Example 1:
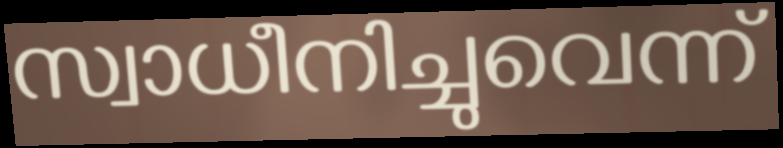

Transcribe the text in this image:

സ്വാധീനിച്ചുവെന്ന്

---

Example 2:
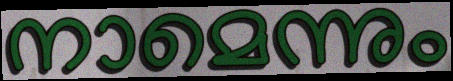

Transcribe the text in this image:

നാമെന്നും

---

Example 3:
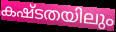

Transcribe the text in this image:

കഷ്ടതയിലും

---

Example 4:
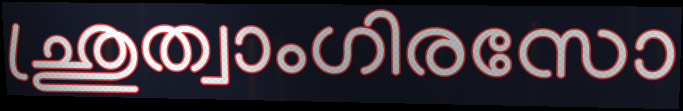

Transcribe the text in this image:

ഛ്രുത്വാംഗിരസോ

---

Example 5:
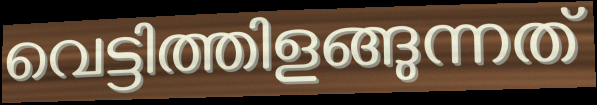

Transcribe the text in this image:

വെട്ടിത്തിളങ്ങുന്നത്